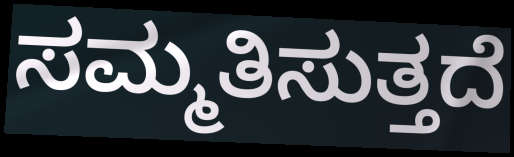
ಸಮ್ಮತಿಸುತ್ತದೆ